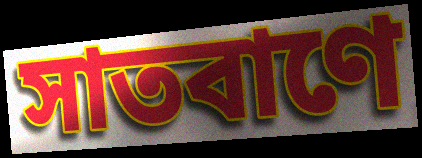
সাতবাণে